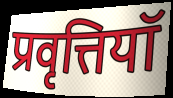
प्रवृत्तियॉ